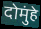
दोमुंहे